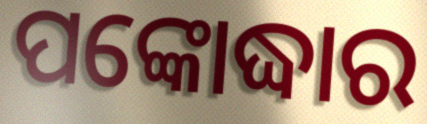
ପଙ୍କୋଦ୍ଧାର